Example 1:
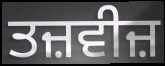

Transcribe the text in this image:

ਤਜ਼ਵੀਜ਼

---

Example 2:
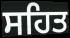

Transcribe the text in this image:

ਸਹਿਤ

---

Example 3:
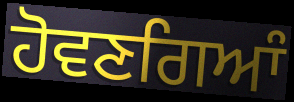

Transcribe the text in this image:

ਹੋਵਣਗਿਆੰ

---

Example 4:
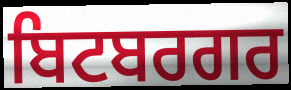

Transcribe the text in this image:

ਬਿਟਬਰਗਰ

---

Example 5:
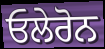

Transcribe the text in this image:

ਓਲੇਰੋਨ